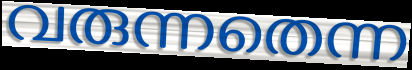
വരുന്നതെന്ന